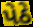
પેઠે